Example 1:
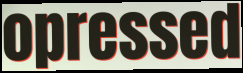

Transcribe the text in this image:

opressed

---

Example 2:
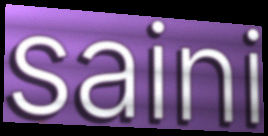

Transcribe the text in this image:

saini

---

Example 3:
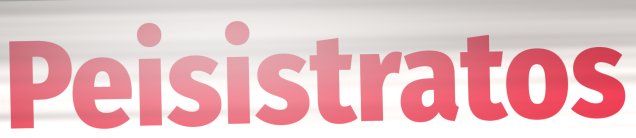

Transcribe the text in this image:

Peisistratos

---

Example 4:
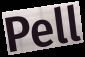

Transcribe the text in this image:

Pell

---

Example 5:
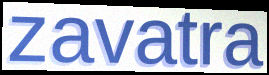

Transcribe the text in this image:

zavatra